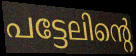
പട്ടേലിന്റെ